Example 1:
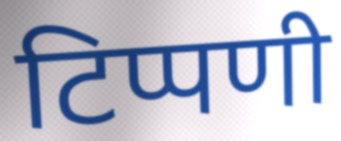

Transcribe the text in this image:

टिप्पणी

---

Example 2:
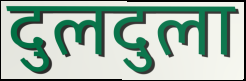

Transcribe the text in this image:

दुलदुला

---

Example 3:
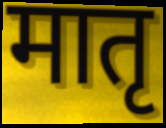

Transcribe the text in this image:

मातृ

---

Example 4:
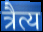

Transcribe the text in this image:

त्रैत्य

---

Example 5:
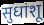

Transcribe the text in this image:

सुधांशू